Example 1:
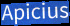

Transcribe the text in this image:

Apicius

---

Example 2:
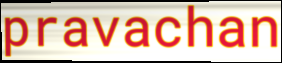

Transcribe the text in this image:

pravachan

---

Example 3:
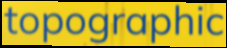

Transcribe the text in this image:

topographic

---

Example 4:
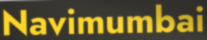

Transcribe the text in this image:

Navimumbai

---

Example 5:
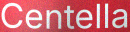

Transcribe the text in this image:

Centella